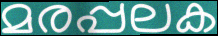
മരപ്പലക